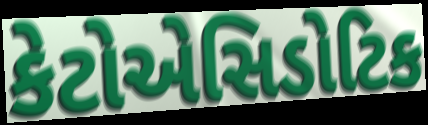
કેટોએસિડોટિક